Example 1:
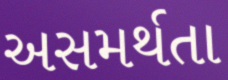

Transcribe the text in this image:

અસમર્થતા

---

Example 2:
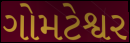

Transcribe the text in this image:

ગોમટેશ્વર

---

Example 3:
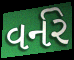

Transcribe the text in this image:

વર્નરે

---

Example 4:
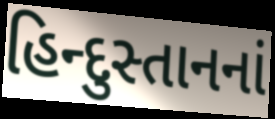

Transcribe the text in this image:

હિન્દુસ્તાનનાં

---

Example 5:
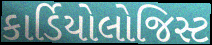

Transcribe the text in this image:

કાર્ડિયોલોજિસ્ટ